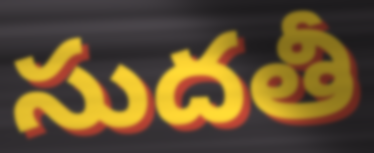
సుదతీ